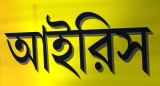
আইরিস